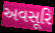
અવસૂરિ